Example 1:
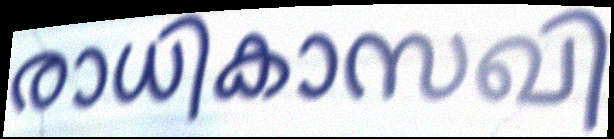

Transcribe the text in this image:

രാധികാസഖി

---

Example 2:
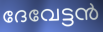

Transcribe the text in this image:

ദേവേട്ടൻ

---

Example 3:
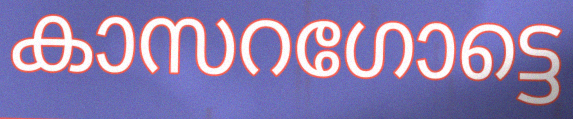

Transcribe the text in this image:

കാസറഗോട്ടെ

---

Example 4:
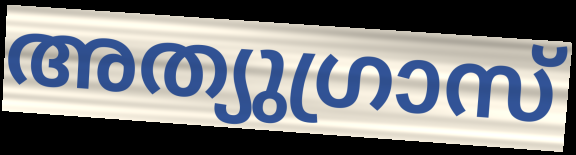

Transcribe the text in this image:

അത്യുഗ്രാസ്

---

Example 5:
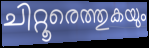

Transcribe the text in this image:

ചിറ്റൂരെത്തുകയും